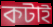
কটাই